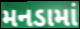
મનડામાં